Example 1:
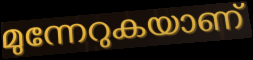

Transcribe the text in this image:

മുന്നേറുകയാണ്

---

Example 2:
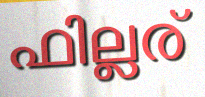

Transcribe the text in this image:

ഫില്ലര്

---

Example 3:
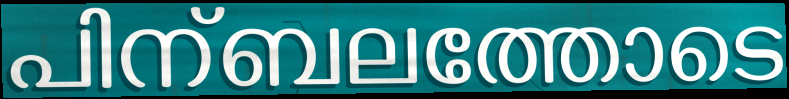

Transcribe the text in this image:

പിന്ബലത്തോടെ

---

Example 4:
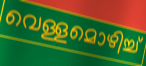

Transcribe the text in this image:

വെള്ളമൊഴിച്ച്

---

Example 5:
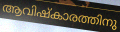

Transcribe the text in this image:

ആവിഷ്കാരത്തിനു